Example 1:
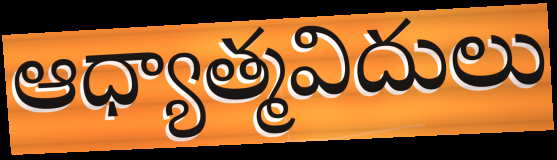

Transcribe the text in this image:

ఆధ్యాత్మవిదులు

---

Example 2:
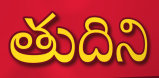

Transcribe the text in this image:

తుదిని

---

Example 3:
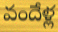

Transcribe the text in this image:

వందేళ్ల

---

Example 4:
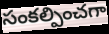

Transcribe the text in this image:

సంకల్పించగా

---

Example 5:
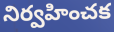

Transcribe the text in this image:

నిర్వహించక